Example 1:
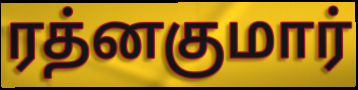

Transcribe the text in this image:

ரத்னகுமார்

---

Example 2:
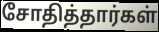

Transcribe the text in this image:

சோதித்தார்கள்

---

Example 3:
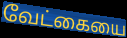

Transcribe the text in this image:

வேட்கையை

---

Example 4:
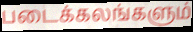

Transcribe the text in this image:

படைக்கலங்களும்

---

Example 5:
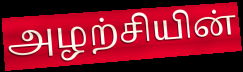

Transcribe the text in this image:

அழற்சியின்